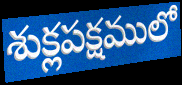
శుక్లపక్షములో